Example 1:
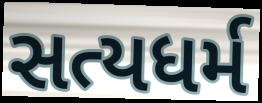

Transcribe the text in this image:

સત્યધર્મ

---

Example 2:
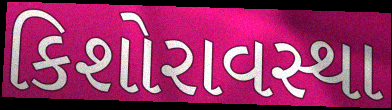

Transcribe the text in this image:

કિશોરાવસ્થા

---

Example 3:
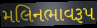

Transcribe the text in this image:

મલિનભાવરૂપ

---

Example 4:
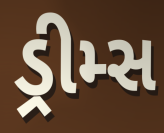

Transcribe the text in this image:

ડ્રીમ્સ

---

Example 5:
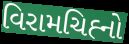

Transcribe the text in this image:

વિરામચિહ્‍નો